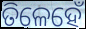
ତିଳେହେଁ